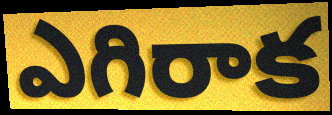
ఎగిరాక